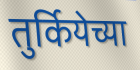
तुर्कियेच्या